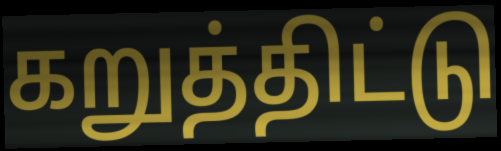
கறுத்திட்டு